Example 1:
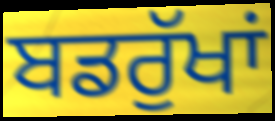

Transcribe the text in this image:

ਬਡਰੁੱਖਾਂ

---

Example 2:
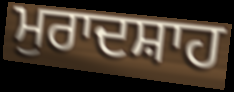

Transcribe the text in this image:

ਮੁਰਾਦਸ਼ਾਹ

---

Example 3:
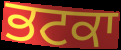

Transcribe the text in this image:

ਭਟਕਾ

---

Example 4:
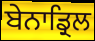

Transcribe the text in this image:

ਬੇਨਾਡ੍ਰਿਲ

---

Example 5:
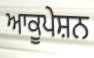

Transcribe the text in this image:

ਆਕੂਪੇਸ਼ਨ